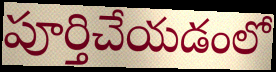
పూర్తిచేయడంలో